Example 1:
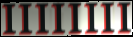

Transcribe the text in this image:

IIIIIIII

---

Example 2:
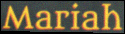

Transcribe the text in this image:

Mariah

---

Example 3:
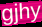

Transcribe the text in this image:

gjhy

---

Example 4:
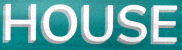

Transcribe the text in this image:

HOUSE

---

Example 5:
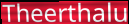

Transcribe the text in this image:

Theerthalu